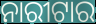
ନାରୀଟାର